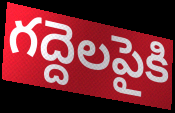
గద్దెలపైకి